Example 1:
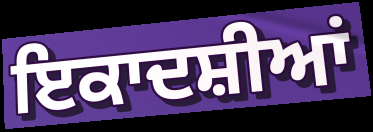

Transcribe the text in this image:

ਇਕਾਦਸ਼ੀਆਂ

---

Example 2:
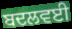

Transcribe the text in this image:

ਬਦਲਵਈ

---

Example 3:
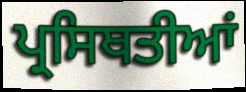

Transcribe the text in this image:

ਪ੍ਰਸਿਥਤੀਆਂ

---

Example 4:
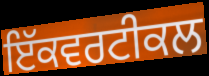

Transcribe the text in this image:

ਇੱਕਵਰਟੀਕਲ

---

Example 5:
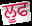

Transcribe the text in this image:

ਲੂਫ